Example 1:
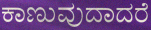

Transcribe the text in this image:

ಕಾಣುವುದಾದರೆ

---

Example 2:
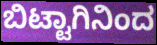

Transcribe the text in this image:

ಬಿಟ್ಟಾಗಿನಿಂದ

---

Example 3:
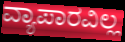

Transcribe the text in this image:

ವ್ಯಾಪಾರವಿಲ್ಲ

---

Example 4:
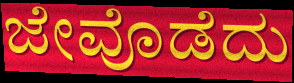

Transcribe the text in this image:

ಜೇವೊಡೆದು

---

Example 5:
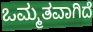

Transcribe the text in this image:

ಒಮ್ಮತವಾಗಿದೆ